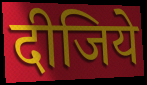
दीजिये